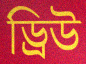
ড্রিউ